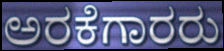
ಅರಕೆಗಾರರು